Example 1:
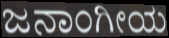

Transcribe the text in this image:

ಜನಾಂಗೀಯ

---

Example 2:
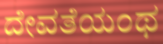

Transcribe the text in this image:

ದೇವತೆಯಂಥ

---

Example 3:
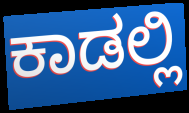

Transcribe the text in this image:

ಕಾಡಲ್ಲಿ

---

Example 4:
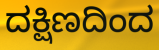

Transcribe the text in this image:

ದಕ್ಷಿಣದಿಂದ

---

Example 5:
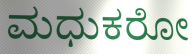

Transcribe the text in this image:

ಮಧುಕರೋ